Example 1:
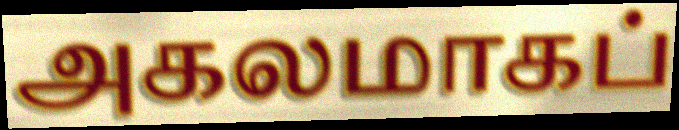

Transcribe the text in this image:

அகலமாகப்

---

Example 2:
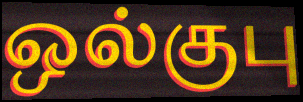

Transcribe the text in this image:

ஒல்குபு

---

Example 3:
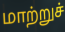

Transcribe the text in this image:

மாற்றுச்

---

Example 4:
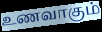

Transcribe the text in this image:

உணவாகும்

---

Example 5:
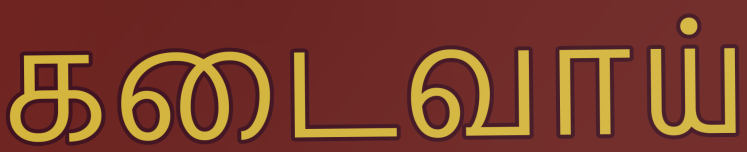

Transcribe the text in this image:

கடைவாய்